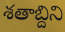
శతాబ్దిని